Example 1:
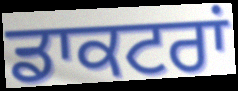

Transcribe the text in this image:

ਡਾਕਟਰਾਂ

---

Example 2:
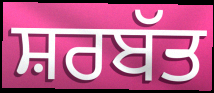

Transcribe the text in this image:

ਸ਼ਰਬੱਤ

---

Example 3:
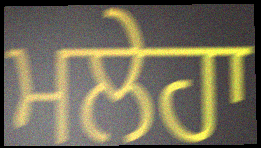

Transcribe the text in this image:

ਮਲੇਹਾ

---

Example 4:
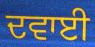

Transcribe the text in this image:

ਦਵਾਈ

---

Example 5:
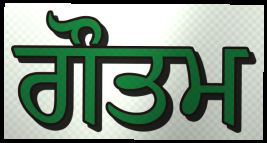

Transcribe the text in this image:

ਗੌਤਮ